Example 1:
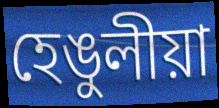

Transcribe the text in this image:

হেঙুলীয়া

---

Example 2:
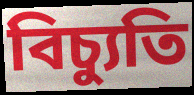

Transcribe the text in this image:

বিচ্যুতি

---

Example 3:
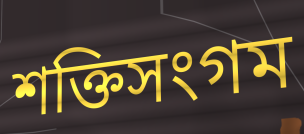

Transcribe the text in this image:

শক্তিসংগম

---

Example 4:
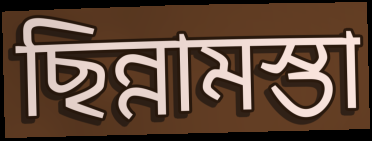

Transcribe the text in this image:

ছিন্নামস্তা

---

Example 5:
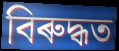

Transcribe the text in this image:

বিৰুদ্ধত